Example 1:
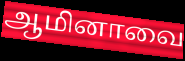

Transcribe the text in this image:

ஆமினாவை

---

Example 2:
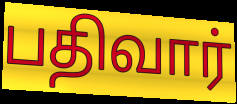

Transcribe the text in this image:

பதிவார்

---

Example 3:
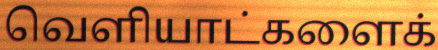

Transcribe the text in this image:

வெளியாட்களைக்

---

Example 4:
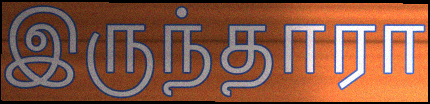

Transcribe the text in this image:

இருந்தாரா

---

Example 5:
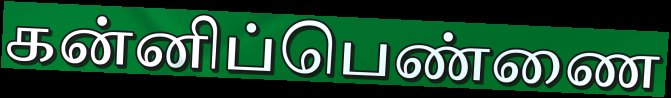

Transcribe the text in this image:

கன்னிப்பெண்ணை